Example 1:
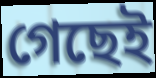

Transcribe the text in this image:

গেছেই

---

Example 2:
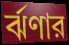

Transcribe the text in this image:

র্ঝণার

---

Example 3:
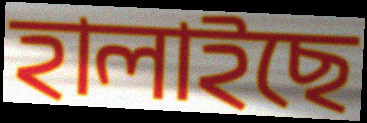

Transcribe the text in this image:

হালাইছে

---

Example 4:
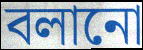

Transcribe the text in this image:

বলানো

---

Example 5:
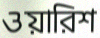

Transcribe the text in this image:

ওয়ারিশ